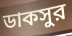
ডাকসুর